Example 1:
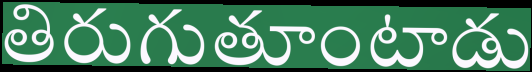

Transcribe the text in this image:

తిరుగుతూంటాడు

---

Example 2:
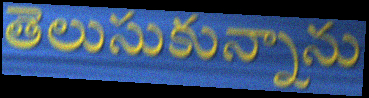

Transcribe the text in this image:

తెలుసుకున్నాను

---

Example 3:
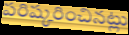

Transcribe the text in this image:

పరిష్కరించినట్లు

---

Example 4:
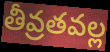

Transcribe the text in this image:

తీవ్రతవల్ల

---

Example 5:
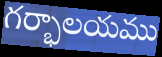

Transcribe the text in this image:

గర్భాలయము